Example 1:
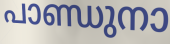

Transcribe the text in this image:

പാണ്ഡുനാ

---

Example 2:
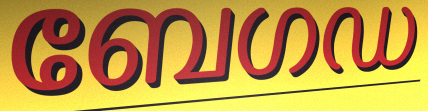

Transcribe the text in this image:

ബേഗഡ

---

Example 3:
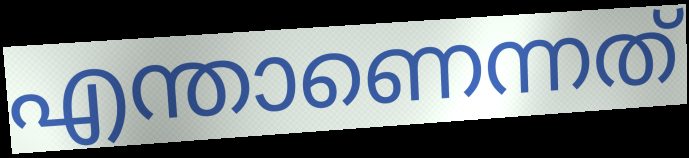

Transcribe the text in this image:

എന്താണെന്നത്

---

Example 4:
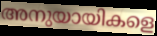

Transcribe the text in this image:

അനുയായികളെ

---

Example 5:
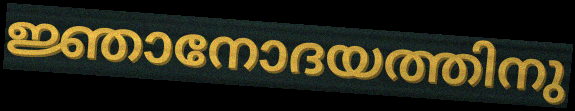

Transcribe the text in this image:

ജ്ഞാനോദയത്തിനു